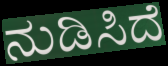
ನುಡಿಸಿದೆ